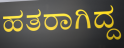
ಹತರಾಗಿದ್ದ